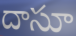
దాసూ